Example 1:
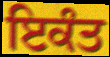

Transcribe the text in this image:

ਇਕੰਤ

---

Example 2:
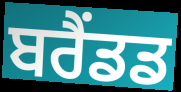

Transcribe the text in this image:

ਬਰੈਂਡਡ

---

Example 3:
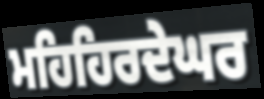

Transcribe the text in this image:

ਮਹਿਹਿਰਦੇਘਰ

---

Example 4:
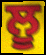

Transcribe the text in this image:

ਲੂ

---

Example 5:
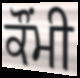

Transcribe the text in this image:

ਕੌਂਮੀ